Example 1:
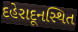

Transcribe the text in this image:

દહેરાદૂનસ્થિત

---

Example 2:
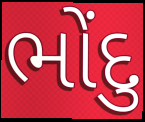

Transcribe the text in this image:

ભોંદુ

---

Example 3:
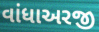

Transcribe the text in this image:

વાંધાઅરજી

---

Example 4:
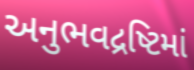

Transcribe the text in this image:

અનુભવદ્રષ્ટિમાં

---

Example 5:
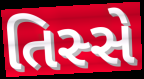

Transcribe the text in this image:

તિસ્સે